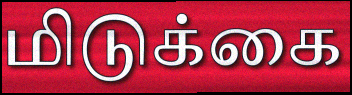
மிடுக்கை